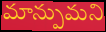
మాన్పుమని